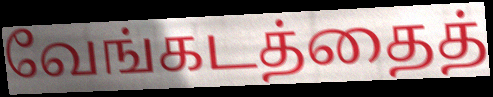
வேங்கடத்தைத்